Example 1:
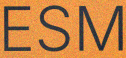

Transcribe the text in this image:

ESM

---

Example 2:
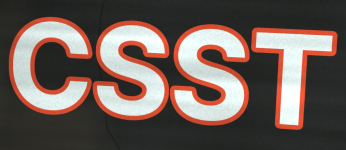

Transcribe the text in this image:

CSST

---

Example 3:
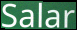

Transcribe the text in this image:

Salar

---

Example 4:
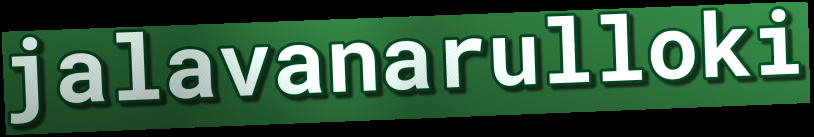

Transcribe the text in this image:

jalavanarulloki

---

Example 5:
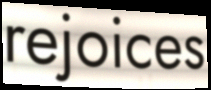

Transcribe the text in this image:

rejoices